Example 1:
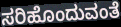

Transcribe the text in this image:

ಸರಿಹೊಂದುವಂತೆ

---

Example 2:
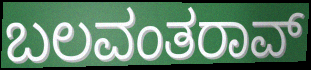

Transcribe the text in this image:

ಬಲವಂತರಾವ್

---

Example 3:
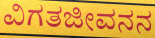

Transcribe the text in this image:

ವಿಗತಜೀವನನ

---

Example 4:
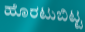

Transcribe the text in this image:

ಹೊರಟುಬಿಟ್ಟ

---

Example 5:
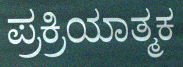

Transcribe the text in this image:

ಪ್ರಕ್ರಿಯಾತ್ಮಕ